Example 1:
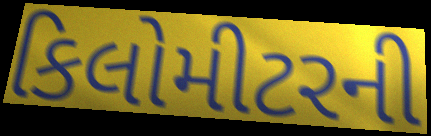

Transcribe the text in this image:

કિલોમીટરની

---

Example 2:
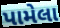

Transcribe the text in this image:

પામેલા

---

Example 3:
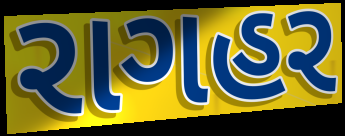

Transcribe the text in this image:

રાગહર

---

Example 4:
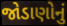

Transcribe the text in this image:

જોડાણોનું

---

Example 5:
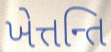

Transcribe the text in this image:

ખેત્તન્તિ